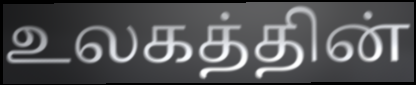
உலகத்தின்